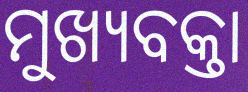
ମୁଖ୍ୟବକ୍ତା